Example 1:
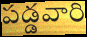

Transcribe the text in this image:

పడ్డవారి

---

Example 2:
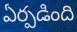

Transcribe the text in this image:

ఏర్పడింది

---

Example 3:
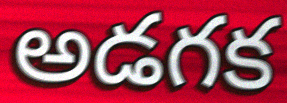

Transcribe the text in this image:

అడగక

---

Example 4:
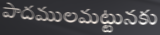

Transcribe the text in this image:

పాదములమట్టునకు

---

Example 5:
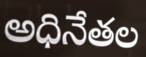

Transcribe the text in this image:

అధినేతల